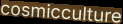
cosmicculture